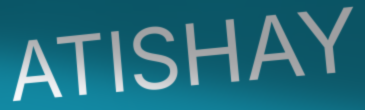
ATISHAY